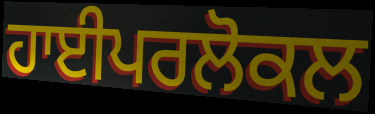
ਹਾਈਪਰਲੋਕਲ